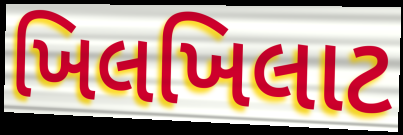
ખિલખિલાટ